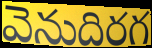
వెనుదిరగ